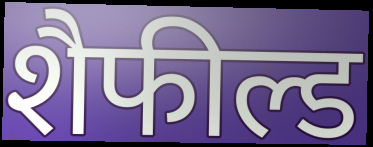
शैफील्ड